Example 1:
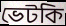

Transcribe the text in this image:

ভেটকি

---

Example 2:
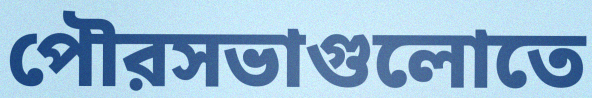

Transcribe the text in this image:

পৌরসভাগুলোতে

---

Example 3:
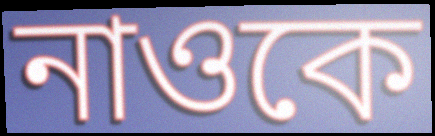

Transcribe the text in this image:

নাওকে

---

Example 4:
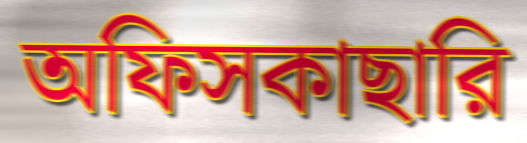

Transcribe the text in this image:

অফিসকাছারি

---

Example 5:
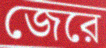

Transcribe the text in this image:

জেরে